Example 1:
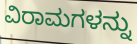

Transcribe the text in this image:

ವಿರಾಮಗಳನ್ನು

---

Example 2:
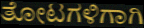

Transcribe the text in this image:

ತೋಟಗಳಿಗಾಗಿ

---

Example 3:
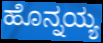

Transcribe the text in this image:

ಹೊನ್ನಯ್ಯ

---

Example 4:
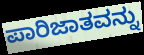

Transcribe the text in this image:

ಪಾರಿಜಾತವನ್ನು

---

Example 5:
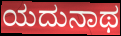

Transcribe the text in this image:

ಯದುನಾಥ